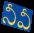
నీవీ